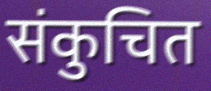
संकुचित